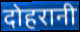
दोहरानी